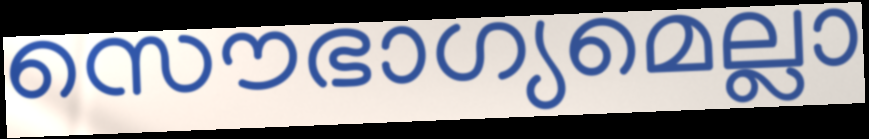
സൌഭാഗ്യമെല്ലാ